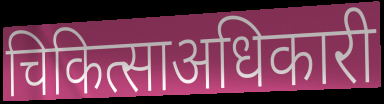
चिकित्साअधिकारी